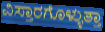
ವಿಸ್ತಾರಗೊಳ್ಳುತ್ತಾ